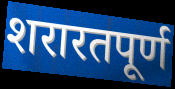
शरारतपूर्ण